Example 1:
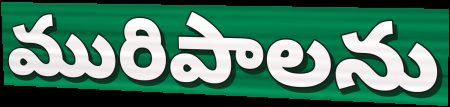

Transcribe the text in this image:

మురిపాలను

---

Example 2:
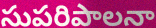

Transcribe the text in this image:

సుపరిపాలనా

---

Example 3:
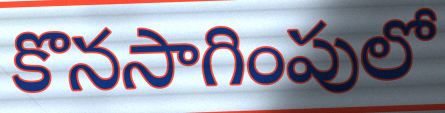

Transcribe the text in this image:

కొనసాగింపులో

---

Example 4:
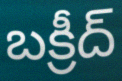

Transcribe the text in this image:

బక్రీద్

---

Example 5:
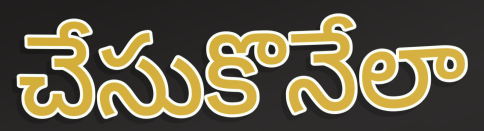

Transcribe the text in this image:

చేసుకొనేలా